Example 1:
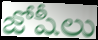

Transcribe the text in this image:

జోషీలు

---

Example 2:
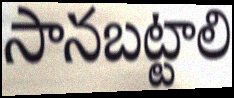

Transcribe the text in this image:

సానబట్టాలి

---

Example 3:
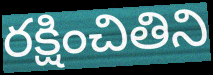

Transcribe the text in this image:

రక్షించితిని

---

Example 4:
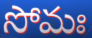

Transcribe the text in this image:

సోమః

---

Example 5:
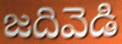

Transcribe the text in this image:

జదివెడి